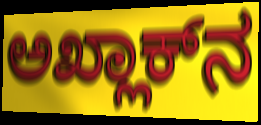
ಅಖ್ಲಾಕ್‍ನ